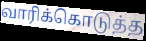
வாரிக்கொடுத்த